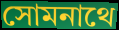
সোমনাথে